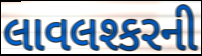
લાવલશ્કરની